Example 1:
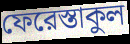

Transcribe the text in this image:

ফেরেস্তাকুল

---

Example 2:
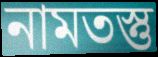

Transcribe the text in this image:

নামতস্তু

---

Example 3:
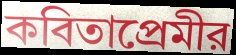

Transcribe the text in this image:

কবিতাপ্রেমীর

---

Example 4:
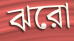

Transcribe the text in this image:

ঝরো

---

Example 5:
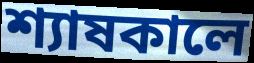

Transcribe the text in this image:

শ্যাষকালে